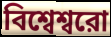
বিশ্বেশ্বরো